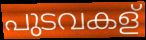
പുടവകള്